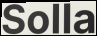
Solla